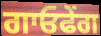
ਗਾਓਫੇਂਗ